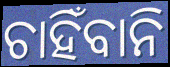
ଚାହିଁବାନି